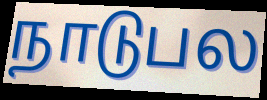
நாடுபல